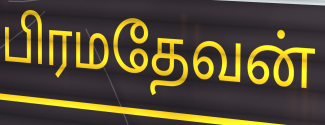
பிரமதேவன்